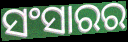
ସଂସାରର